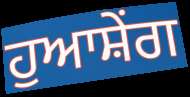
ਹੁਆਸ਼ੇਂਗ